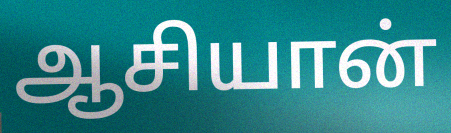
ஆசியான்